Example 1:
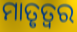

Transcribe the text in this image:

ମାତୃତ୍ୱର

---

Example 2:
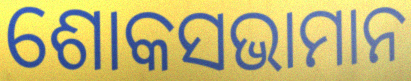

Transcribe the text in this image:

ଶୋକସଭାମାନ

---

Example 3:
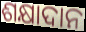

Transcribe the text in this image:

ଶକ୍ଷାଦାନ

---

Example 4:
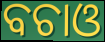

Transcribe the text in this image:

ବଚାଓ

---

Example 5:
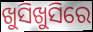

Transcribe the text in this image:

ଖୁସିଖୁସିରେ